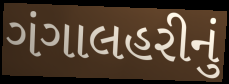
ગંગાલહરીનું